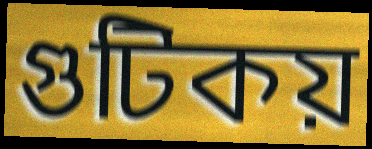
গুটিকয়